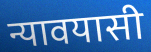
न्यावयासी